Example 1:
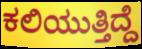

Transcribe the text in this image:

ಕಲಿಯುತ್ತಿದ್ದೆ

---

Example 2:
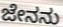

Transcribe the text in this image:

ಜೇನನು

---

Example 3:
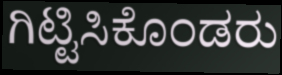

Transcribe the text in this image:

ಗಿಟ್ಟಿಸಿಕೊಂಡರು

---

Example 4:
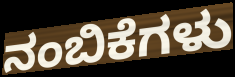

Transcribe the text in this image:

ನಂಬಿಕೆಗಳು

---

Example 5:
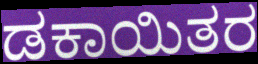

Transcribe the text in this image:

ಡಕಾಯಿತರ